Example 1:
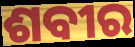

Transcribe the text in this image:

ଶବୀର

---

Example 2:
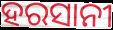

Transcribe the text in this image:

ହରସାନୀ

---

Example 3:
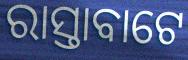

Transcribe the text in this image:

ରାସ୍ତାବାଟେ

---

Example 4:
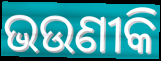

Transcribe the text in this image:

ଭଉଣୀକି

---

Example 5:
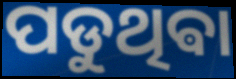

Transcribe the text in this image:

ପଡୁଥିଵା